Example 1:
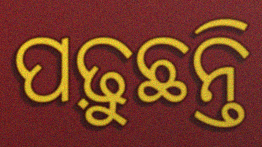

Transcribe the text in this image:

ପଢ଼ୁଛନ୍ତି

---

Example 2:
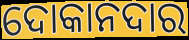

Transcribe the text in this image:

ଦୋକାନଦାର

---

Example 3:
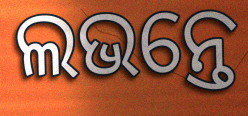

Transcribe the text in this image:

ଲଭନ୍ତେ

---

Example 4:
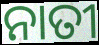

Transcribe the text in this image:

ନାତୀ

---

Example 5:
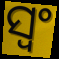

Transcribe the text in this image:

ସ୍ୱଂ